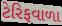
ટેરિફવાળા